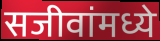
सजीवांमध्ये